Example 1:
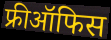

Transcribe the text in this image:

फ्रीऑफिस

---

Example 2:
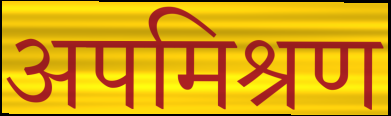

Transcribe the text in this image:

अपमिश्रण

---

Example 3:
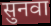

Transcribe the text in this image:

सुनवा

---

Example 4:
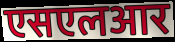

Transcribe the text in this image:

एसएलआर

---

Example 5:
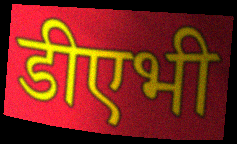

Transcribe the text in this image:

डीएभी